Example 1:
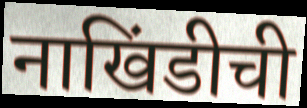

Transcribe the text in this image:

नाखिंडीची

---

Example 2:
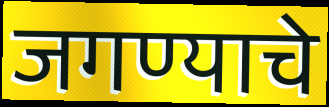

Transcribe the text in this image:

जगण्याचे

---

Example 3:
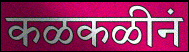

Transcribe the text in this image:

कळकळीनं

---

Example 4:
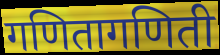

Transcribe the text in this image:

गणितागणिती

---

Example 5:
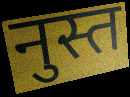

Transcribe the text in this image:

नुस्त